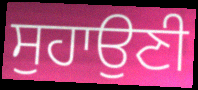
ਸੁਹਾਉਣੀ